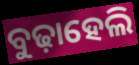
ବୁଢ଼ାହେଲି